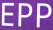
EPP